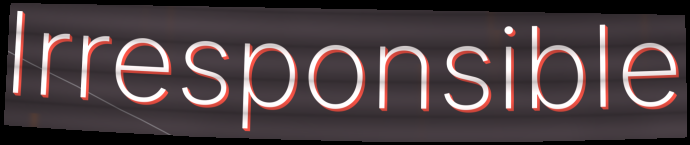
Irresponsible